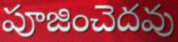
పూజించెదవు